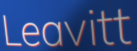
Leavitt